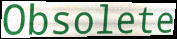
Obsolete